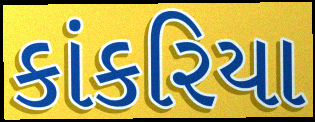
કાંકરિયા